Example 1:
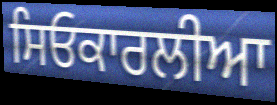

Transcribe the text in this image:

ਸਿਓਕਾਰਲੀਆ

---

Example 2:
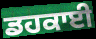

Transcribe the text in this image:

ਡਹਕਾਈ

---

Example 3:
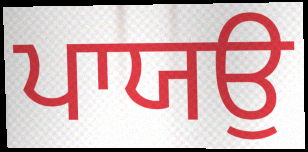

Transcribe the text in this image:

ਪਾਯਉ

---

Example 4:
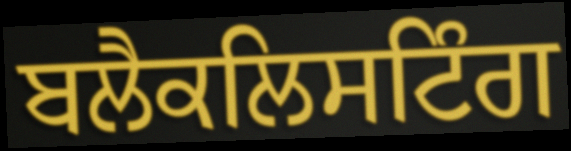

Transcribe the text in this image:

ਬਲੈਕਲਿਸਟਿੰਗ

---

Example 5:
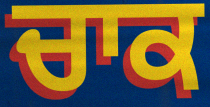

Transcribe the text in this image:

ਚਾਕ